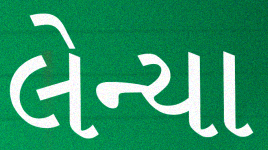
લેન્યા